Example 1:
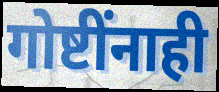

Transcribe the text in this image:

गोष्टींनाही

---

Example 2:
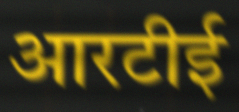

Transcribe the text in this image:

आरटीई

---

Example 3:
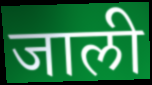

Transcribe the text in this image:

जाली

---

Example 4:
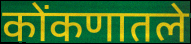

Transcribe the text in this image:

कोंकणातले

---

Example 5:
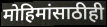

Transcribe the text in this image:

मोहिमांसाठीही